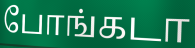
போங்கடா